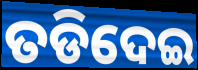
ତଡିଦେଇ